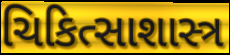
ચિકિત્સાશાસ્ત્ર